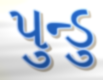
પુન્ડુ